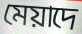
মেয়াদে